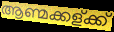
ആണ്മക്കള്ക്ക്